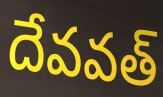
దేవవత్